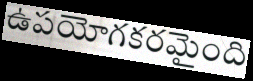
ఉపయోగకరమైంది